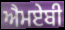
ਐਮਏਬੀ